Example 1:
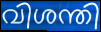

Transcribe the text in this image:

വിശന്തി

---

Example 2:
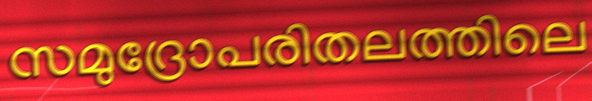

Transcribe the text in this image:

സമുദ്രോപരിതലത്തിലെ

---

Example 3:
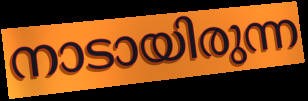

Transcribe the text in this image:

നാടായിരുന്ന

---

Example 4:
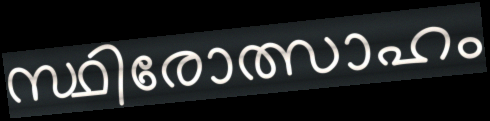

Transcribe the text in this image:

സ്ഥിരോത്സാഹം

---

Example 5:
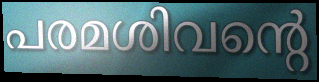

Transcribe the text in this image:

പരമശിവന്റെ